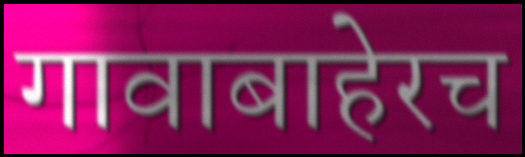
गावाबाहेरच